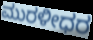
ಮುರಳೀಧರ